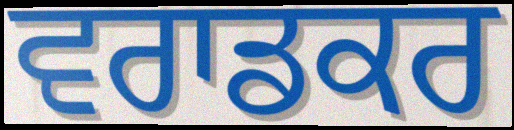
ਵਰਾਡਕਰ